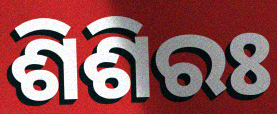
ଶିଶିରଃ